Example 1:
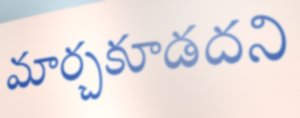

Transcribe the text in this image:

మార్చకూడదని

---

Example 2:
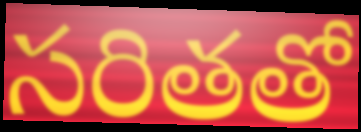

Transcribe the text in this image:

సరితతో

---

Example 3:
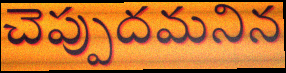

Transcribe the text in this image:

చెప్పుదమనిన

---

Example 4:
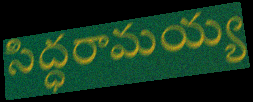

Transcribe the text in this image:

సిద్ధరామయ్య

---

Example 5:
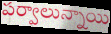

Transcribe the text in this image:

పర్వాలున్నాయి